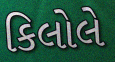
કિલોલે